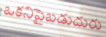
ఒకనిపైబడుదురు